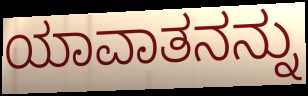
ಯಾವಾತನನ್ನು